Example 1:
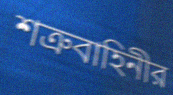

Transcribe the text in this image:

শত্রুবাহিনীর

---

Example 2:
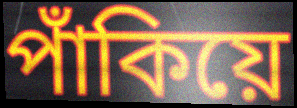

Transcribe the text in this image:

পাঁকিয়ে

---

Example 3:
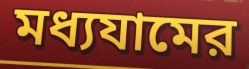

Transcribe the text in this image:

মধ্যযামের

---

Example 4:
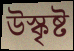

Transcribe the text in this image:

উস্কৃষ্ট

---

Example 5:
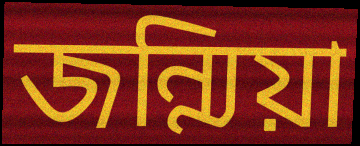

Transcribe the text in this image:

জন্মিয়া